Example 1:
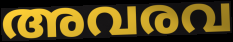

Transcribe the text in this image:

അവരവ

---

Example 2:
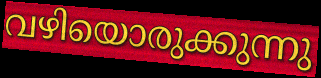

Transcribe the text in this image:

വഴിയൊരുക്കുന്നു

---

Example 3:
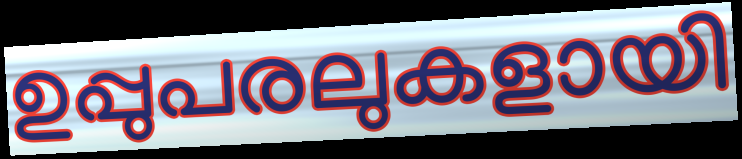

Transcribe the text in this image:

ഉപ്പുപരലുകളായി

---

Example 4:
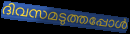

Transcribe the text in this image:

ദിവസമടുത്തപ്പോൾ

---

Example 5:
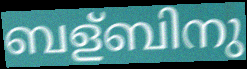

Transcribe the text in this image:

ബള്ബിനു